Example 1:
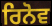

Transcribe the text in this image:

ਰਿਨੋਵ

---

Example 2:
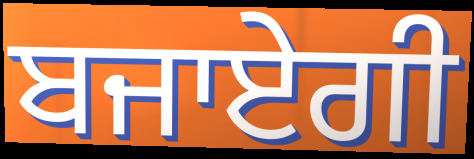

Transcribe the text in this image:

ਬਜਾਏਗੀ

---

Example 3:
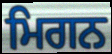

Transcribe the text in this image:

ਮਿਗਨ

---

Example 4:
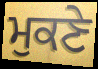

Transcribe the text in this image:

ਮੁਕਣੇ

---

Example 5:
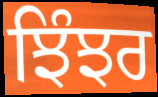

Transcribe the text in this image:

ਝਿੰਝਰ